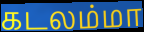
கடலம்மா